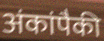
अंकांपैकी